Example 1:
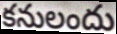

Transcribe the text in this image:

కనులందు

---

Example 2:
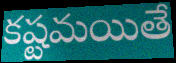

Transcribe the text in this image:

కష్టమయితే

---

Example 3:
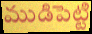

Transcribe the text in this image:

ముడిపెట్టి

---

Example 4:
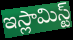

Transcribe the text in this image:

ఇస్లామిస్ట్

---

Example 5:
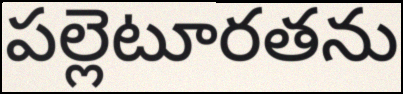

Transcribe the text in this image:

పల్లెటూరతను